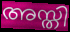
അസ്തി